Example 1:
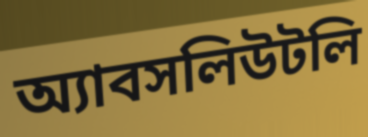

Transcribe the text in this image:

অ্যাবসলিউটলি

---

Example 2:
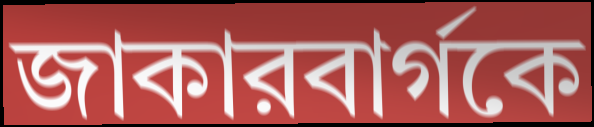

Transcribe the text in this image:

জাকারবার্গকে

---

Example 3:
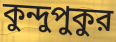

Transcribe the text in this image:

কুন্দুপুকুর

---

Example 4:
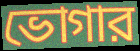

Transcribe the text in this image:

ভোগার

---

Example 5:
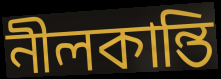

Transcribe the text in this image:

নীলকান্তি